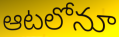
ఆటలోనూ